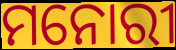
ମନୋରୀ